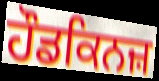
ਹੌਡਕਿਨਜ਼